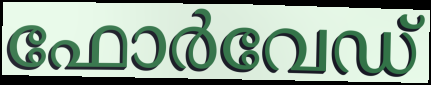
ഫോർവേഡ്